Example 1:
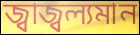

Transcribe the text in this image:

জ্বাজ্বল্যমান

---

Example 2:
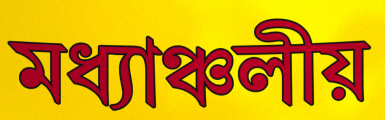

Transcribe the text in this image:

মধ্যাঞ্চলীয়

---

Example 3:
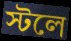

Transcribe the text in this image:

স্টলে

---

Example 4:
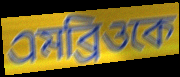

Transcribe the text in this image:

এমব্রিওকে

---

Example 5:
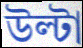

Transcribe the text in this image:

উল্টা